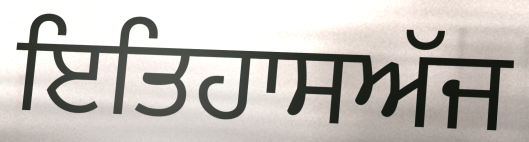
ਇਤਿਹਾਸਅੱਜ